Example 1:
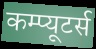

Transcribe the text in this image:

कम्प्यूटर्स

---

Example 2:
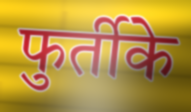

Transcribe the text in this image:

फुर्तीके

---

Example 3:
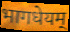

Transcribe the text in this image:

भागधेयम्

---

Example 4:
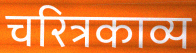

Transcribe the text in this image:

चरित्रकाव्य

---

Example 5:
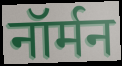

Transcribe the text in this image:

नॉर्मन